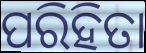
ପରିହିତା